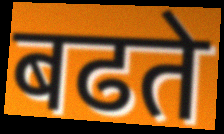
बढते